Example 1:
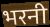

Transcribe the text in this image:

भरनी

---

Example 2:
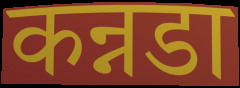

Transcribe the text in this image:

कन्नडा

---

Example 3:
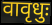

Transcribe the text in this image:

वावृधुः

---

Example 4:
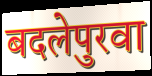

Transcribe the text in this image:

बदलेपुरवा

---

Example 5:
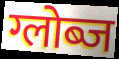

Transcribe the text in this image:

ग्लोब्ज